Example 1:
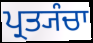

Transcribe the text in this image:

ਪ੍ਰਤ੍ਯੰਚਾ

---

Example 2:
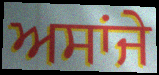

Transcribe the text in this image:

ਅਸਾਂਜੇ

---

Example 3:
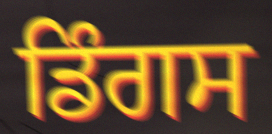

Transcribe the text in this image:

ਡਿੰਗਸ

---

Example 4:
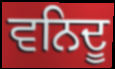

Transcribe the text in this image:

ਵਨਿਦੂ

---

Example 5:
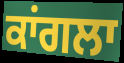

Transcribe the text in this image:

ਕਾਂਗਲਾ